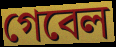
গেবেল